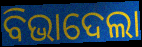
ବିଭାଦେଲା